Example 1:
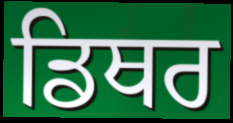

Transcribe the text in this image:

ਡਿਥਰ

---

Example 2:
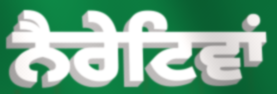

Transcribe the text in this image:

ਨੈਰੇਟਿਵਾਂ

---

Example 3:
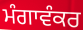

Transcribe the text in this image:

ਮੰਗਾਵੰਕਰ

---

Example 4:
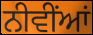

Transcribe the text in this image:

ਨੀਵੀਂਆਂ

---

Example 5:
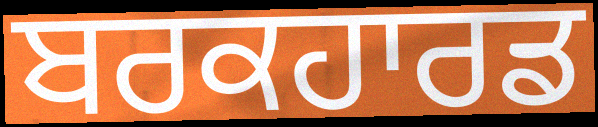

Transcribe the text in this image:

ਬਰਕਹਾਰਡ